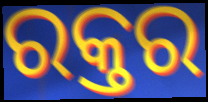
ରକ୍ତର